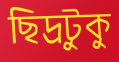
ছিদ্রটুকু